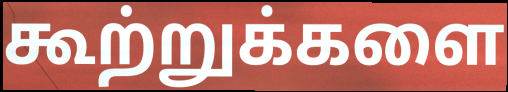
கூற்றுக்களை